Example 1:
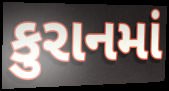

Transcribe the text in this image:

કુરાનમાં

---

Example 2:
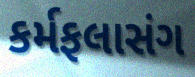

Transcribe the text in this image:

કર્મફલાસંગ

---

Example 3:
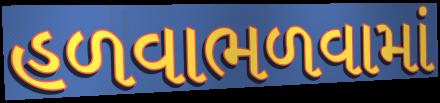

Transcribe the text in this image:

હળવાભળવામાં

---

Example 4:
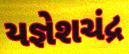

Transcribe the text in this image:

યજ્ઞેશચંદ્ર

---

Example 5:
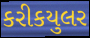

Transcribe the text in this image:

કરીકયુલર